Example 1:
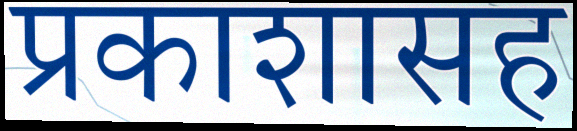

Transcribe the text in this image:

प्रकाशासह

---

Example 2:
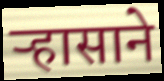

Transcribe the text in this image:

ऱ्हासाने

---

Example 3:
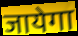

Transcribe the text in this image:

जायेगा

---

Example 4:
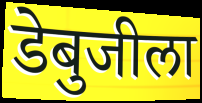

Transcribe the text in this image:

डेबुजीला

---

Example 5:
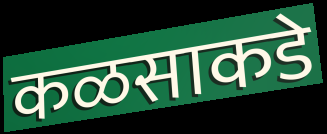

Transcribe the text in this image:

कळसाकडे